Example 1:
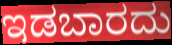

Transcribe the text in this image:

ಇಡಬಾರದು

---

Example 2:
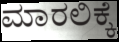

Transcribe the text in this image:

ಮಾರಲಿಕ್ಕೆ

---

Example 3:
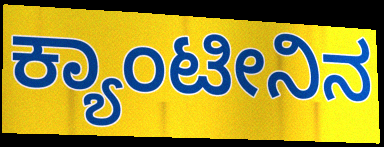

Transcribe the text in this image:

ಕ್ಯಾಂಟೀನಿನ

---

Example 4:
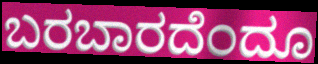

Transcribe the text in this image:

ಬರಬಾರದೆಂದೂ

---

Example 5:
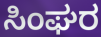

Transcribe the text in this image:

ಸಿಂಘರ